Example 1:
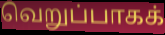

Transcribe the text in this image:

வெறுப்பாகக்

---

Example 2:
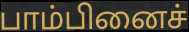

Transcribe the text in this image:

பாம்பினைச்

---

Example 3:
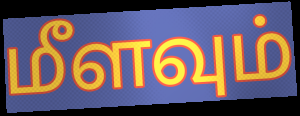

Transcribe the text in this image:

மீளவும்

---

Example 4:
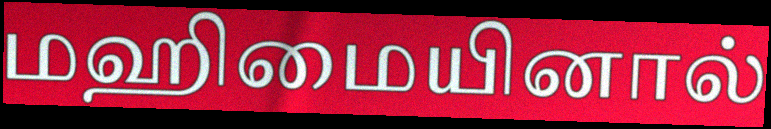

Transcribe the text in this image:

மஹிமையினால்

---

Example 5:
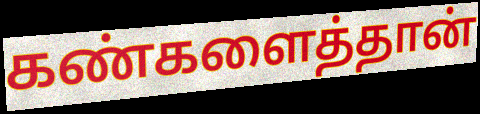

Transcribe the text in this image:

கண்களைத்தான்